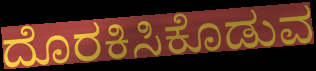
ದೊರಕಿಸಿಕೊಡುವ